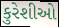
કુરેશીઓ